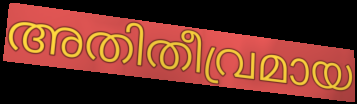
അതിതീവ്രമായ